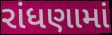
રાંધણામાં